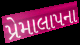
પ્રેમાલાપના